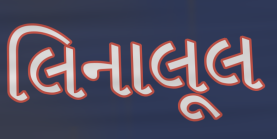
લિનાલૂલ